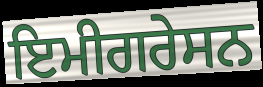
ਇਮੀਗਰੇਸਨ